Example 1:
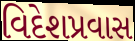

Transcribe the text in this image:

વિદેશપ્રવાસ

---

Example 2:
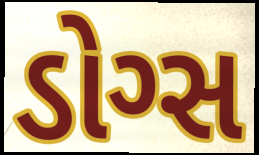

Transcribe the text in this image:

ડોગ્સ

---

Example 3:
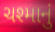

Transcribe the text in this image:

ચશ્માનું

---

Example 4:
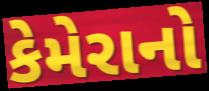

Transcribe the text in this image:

કેમેરાનો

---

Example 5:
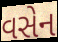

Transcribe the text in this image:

વસેન